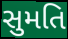
સુમતિ